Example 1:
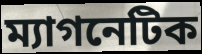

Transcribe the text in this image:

ম্যাগনেটিক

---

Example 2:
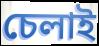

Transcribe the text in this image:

চেলাই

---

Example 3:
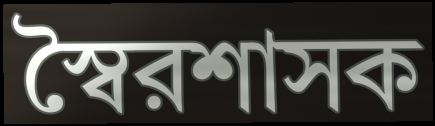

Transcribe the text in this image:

স্বৈরশাসক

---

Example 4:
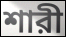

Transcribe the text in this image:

শারী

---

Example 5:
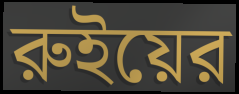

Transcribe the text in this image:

রুইয়ের